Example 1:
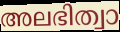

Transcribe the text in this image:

അലഭിത്വാ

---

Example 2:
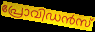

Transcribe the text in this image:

പ്രോവിഡൻസ്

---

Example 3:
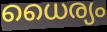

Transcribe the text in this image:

ധൈര്യം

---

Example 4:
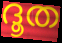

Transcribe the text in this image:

ദൂത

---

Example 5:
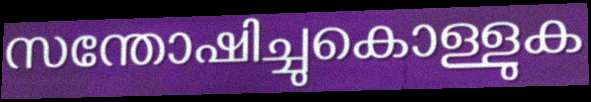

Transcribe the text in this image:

സന്തോഷിച്ചുകൊള്ളുക